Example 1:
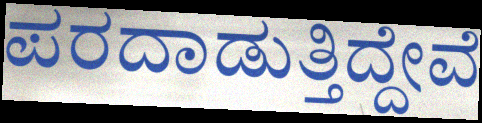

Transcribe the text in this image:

ಪರದಾಡುತ್ತಿದ್ದೇವೆ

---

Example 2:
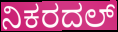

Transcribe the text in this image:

ನಿಕರದಲ್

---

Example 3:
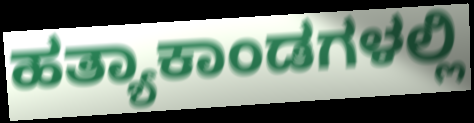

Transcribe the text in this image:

ಹತ್ಯಾಕಾಂಡಗಳಲ್ಲಿ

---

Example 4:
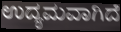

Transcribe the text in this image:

ಉದ್ಯಮವಾಗಿದೆ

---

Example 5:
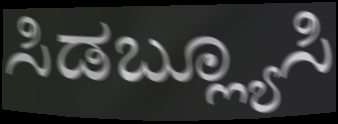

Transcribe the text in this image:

ಸಿಡಬ್ಲ್ಯೂಸಿ